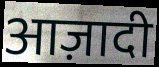
आज़ादी